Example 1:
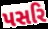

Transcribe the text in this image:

પસરિ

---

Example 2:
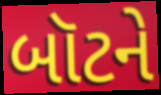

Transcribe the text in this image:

બૉટને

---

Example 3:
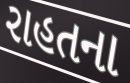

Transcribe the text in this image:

રાહતના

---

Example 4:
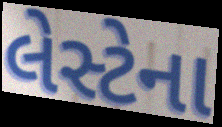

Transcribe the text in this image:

લેસ્ટેના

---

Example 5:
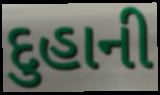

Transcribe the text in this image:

દુહાની